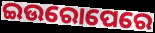
ଇଉରୋପେରେ